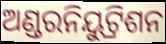
ଅଣ୍ଡରନିୟୁଟ୍ରିଶନ